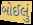
બોઈલું